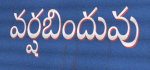
వర్షబిందువు